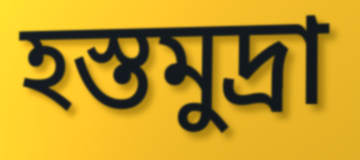
হস্তমুদ্রা